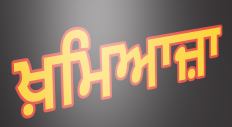
ਖ਼ਮਿਆਜ਼ਾ